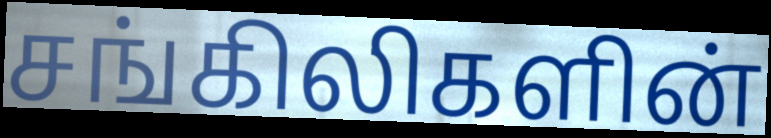
சங்கிலிகளின்